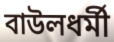
বাউলধর্মী